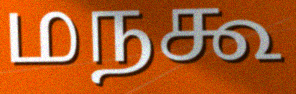
மநகூ